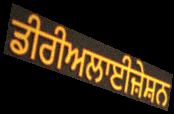
ਡੀਰੀਅਲਾਈਜ਼ੇਸ਼ਨ